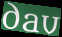
dau